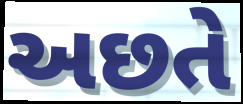
અછતે